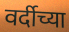
वर्दीच्या